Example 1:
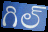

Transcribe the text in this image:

గిల్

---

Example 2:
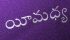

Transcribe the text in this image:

యీమధ్య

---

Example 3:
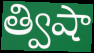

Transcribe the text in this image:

త్విషా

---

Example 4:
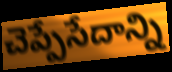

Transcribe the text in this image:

చెప్పేసేదాన్ని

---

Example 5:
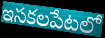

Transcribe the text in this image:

ఇసకలపేటలో